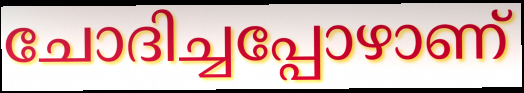
ചോദിച്ചപ്പോഴാണ്